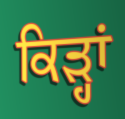
ਕਿੜ੍ਹਾਂ